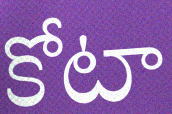
కోటా